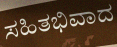
ಸಹಿತಭಿವಾದ